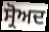
ਸ੍ਰੋਅਦ